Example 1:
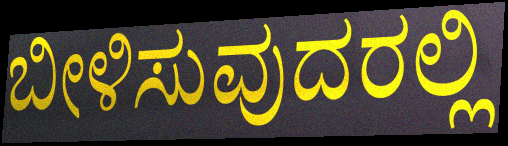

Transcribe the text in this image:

ಬೀಳಿಸುವುದರಲ್ಲಿ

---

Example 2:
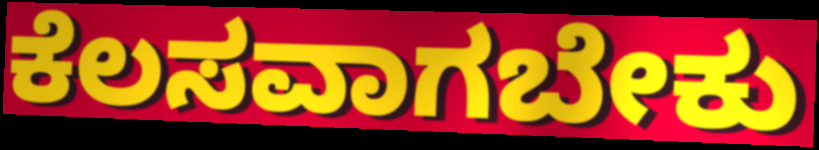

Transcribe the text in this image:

ಕೆಲಸವಾಗಬೇಕು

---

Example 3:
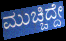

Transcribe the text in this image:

ಮುಚ್ಚಿದ್ದೇ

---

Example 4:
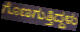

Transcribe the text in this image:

ಗೊಣಗುತ್ತಿದ್ದಳು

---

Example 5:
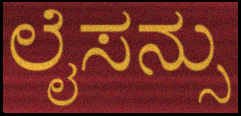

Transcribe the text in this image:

ಲೈಸನ್ಸು